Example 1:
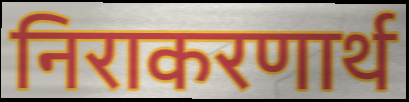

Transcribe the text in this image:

निराकरणार्थ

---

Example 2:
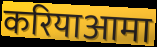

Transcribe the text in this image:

करियाआमा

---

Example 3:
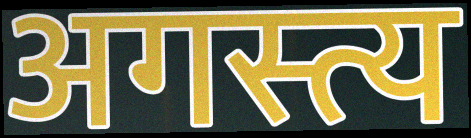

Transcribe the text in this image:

अगस्त्य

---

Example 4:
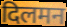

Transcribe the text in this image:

दिलमन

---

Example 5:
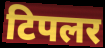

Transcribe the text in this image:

टिपलर